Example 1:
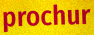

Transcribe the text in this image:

prochur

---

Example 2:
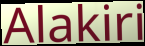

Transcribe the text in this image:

Alakiri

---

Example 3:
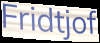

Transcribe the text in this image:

Fridtjof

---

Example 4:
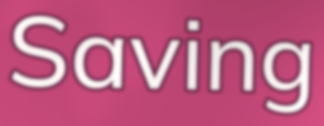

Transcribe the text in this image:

Saving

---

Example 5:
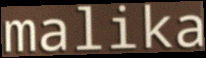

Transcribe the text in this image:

malika